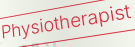
Physiotherapist